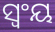
ସ୍ୱଂୟ